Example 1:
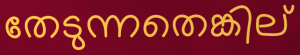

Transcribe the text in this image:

തേടുന്നതെങ്കില്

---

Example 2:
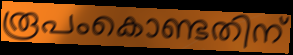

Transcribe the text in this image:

രൂപംകൊണ്ടതിന്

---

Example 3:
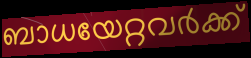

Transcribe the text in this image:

ബാധയേറ്റവർക്ക്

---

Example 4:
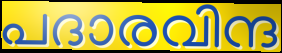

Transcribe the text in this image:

പദാരവിന്ദ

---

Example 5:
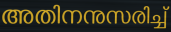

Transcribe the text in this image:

അതിനനുസരിച്ച്